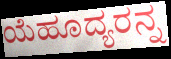
ಯೆಹೂದ್ಯರನ್ನ